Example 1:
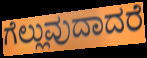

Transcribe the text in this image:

ಗೆಲ್ಲುವುದಾದರೆ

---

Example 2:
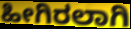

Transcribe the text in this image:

ಹೀಗಿರಲಾಗಿ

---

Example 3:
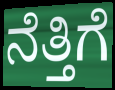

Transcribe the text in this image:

ನೆತ್ತಿಗೆ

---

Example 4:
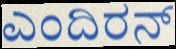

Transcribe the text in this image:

ಎಂದಿರನ್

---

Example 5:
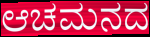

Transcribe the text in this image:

ಆಚಮನದ